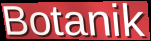
Botanik